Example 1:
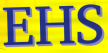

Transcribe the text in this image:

EHS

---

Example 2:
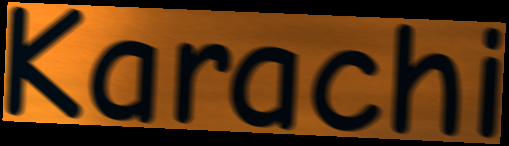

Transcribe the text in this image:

Karachi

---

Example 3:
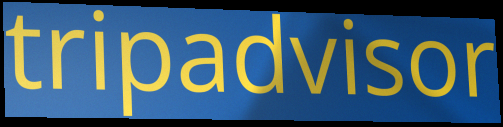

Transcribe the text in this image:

tripadvisor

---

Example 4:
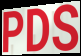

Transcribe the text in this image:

PDS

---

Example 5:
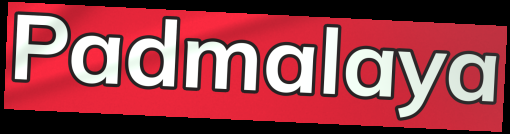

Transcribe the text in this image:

Padmalaya